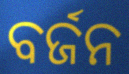
ବର୍ଜନ